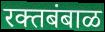
रक्तबंबाळ